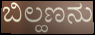
ಬಿಲ್ಹಣನು